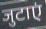
जुटाएं